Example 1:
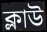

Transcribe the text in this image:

ক্লাউ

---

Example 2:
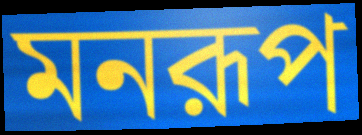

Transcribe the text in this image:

মনরূপ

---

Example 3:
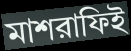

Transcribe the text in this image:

মাশরাফিই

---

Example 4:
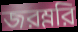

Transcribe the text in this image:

জরম্নরি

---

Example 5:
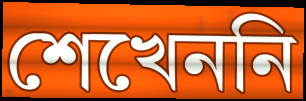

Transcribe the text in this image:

শেখেননি